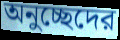
অনুচ্ছেদের